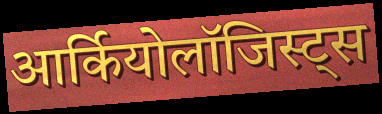
आर्कियोलॉजिस्ट्स